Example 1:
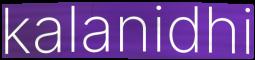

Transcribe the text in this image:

kalanidhi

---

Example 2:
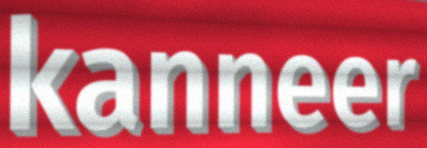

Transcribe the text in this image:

kanneer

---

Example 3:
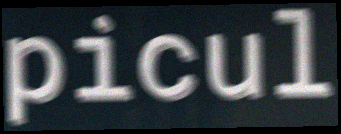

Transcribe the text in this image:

picul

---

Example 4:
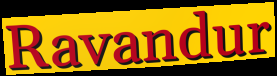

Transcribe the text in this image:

Ravandur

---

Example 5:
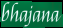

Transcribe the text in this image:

bhajana